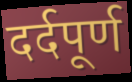
दर्दपूर्ण